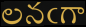
లనఁగా